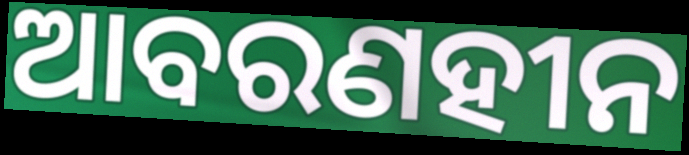
ଆବରଣହୀନ